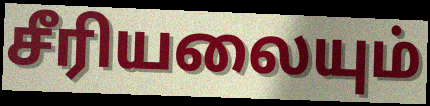
சீரியலையும்